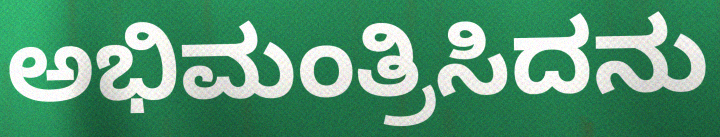
ಅಭಿಮಂತ್ರಿಸಿದನು